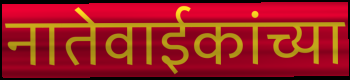
नातेवाईकांच्या